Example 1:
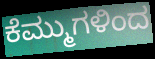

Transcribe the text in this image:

ಕೆಮ್ಮುಗಳಿಂದ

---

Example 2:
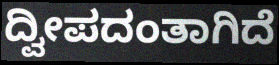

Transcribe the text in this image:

ದ್ವೀಪದಂತಾಗಿದೆ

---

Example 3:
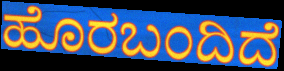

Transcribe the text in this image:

ಹೊರಬಂದಿದೆ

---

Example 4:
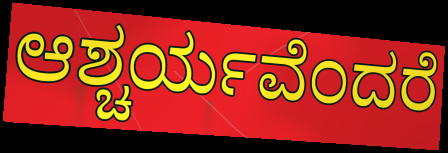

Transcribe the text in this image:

ಆಶ್ಚರ್ಯವೆಂದರೆ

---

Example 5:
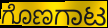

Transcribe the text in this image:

ಗೊಣಗಾಟ